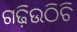
ଗଢ଼ିଉଠିଚି